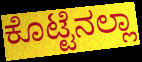
ಕೊಟ್ಟೆನಲ್ಲಾ